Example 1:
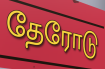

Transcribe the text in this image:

தேரோடு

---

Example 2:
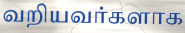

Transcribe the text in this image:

வறியவர்களாக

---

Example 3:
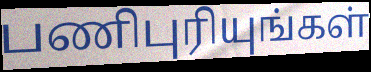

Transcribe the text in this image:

பணிபுரியுங்கள்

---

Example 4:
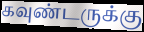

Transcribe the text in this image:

கவுண்டருக்கு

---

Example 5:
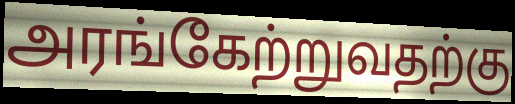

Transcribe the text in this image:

அரங்கேற்றுவதற்கு